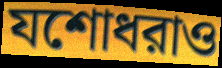
যশোধরাও